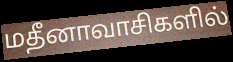
மதீனாவாசிகளில்